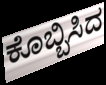
ಕೊಬ್ಬಿಸಿದ